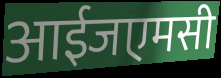
आईजएमसी